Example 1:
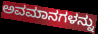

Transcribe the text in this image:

ಅವಮಾನಗಳನ್ನು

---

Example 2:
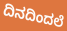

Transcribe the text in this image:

ದಿನದಿಂದಲೆ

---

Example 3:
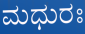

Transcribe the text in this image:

ಮಧುರಃ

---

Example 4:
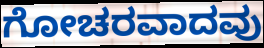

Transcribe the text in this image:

ಗೋಚರವಾದವು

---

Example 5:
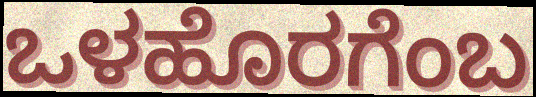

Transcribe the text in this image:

ಒಳಹೊರಗೆಂಬ